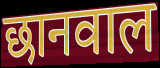
छानवाल